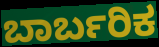
ಬಾರ್ಬರಿಕ